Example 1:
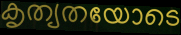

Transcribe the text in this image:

കൃത്യതയോടെ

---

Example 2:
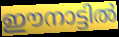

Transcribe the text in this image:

ഈനാട്ടിൽ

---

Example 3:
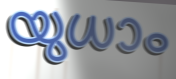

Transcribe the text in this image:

യുധാം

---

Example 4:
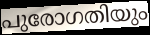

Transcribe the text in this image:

പുരോഗതിയും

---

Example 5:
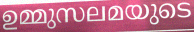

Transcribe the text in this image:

ഉമ്മുസലമയുടെ